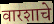
वारशाचे